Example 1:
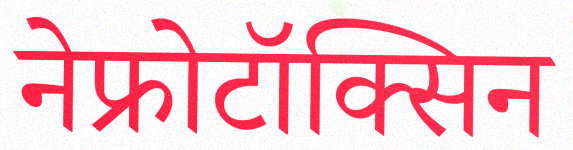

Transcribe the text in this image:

नेफ्रोटॉक्सिन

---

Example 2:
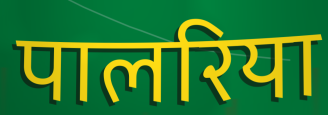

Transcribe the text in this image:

पालरिया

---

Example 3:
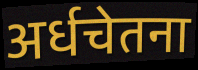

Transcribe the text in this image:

अर्धचेतना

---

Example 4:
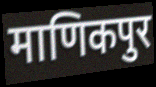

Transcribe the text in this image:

माणिकपुर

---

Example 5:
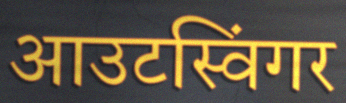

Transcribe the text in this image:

आउटस्विंगर